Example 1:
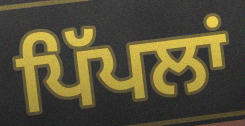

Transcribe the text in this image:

ਪਿੱਪਲਾਂ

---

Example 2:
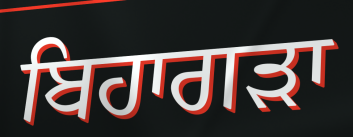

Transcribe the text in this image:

ਬਿਹਾਗੜਾ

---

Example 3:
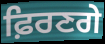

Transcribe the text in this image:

ਫ਼ਿਰਣਗੇ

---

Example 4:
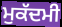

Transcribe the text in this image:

ਮੁਕੱਦਮੀ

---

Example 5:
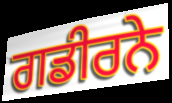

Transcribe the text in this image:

ਗਡੀਰਨੇ